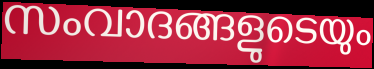
സംവാദങ്ങളുടെയും